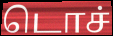
டொச்